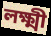
লক্ষ্মী